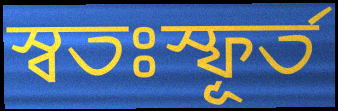
স্বতঃস্ফূৰ্ত